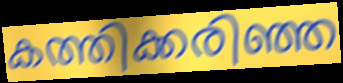
കത്തിക്കരിഞ്ഞ